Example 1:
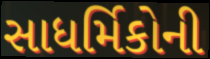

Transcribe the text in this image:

સાધર્મિકોની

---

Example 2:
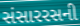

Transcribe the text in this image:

સંસારરસની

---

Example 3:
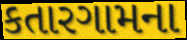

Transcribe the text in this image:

કતારગામના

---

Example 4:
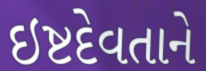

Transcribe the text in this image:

ઇષ્ટદેવતાને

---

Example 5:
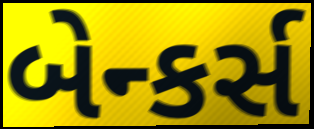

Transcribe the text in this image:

બેન્કર્સ